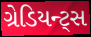
ગ્રેડિયન્ટ્સ